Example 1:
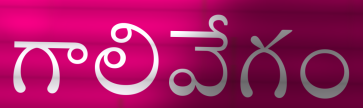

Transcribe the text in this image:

గాలివేగం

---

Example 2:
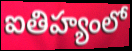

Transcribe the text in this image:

ఐతిహ్యంలో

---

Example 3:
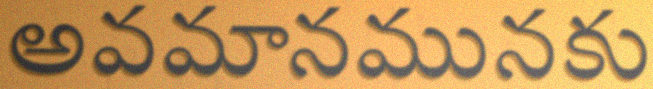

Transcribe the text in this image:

అవమానమునకు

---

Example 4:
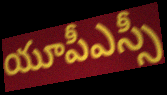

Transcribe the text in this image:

యూపీఎస్సీ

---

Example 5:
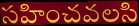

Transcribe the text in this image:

సహించవలసి